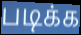
படிக்க